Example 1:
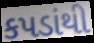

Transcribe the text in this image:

કપડાંથી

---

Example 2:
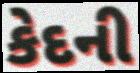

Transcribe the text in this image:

કેદની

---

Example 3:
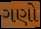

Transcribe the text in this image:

ગણો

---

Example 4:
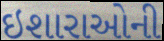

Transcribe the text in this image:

ઇશારાઓની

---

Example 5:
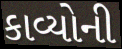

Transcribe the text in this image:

કાવ્યોની